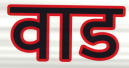
वाड